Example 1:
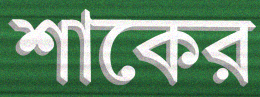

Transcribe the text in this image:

শাকের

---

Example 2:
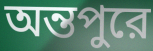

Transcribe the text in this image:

অন্তপুরে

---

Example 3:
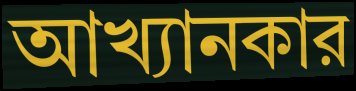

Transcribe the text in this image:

আখ্যানকার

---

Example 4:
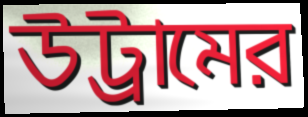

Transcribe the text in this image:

উট্রামের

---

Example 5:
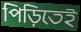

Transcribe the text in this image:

পিড়িতেই